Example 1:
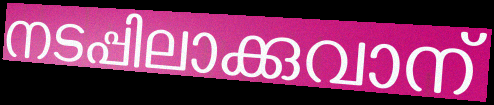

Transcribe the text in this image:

നടപ്പിലാക്കുവാന്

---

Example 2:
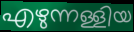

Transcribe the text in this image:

എഴുന്നള്ളിയ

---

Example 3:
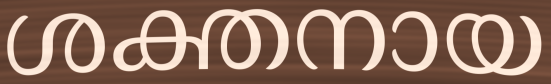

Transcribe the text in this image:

ശക്തനായ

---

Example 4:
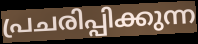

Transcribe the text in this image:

പ്രചരിപ്പിക്കുന്ന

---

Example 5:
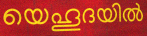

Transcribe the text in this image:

യെഹൂദയിൽ